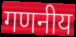
गणनीय